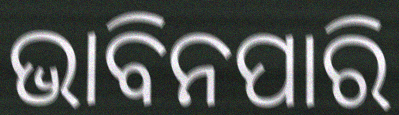
ଭାବିନପାରି